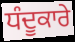
ਧੰਦੂਕਾਰੇ